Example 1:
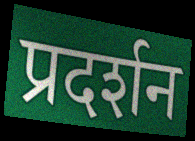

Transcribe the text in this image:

प्रदर्शन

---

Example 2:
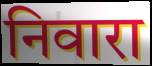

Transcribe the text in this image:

निवारा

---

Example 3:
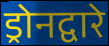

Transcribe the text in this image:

ड्रोनद्वारे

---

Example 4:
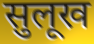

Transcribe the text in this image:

सुलूख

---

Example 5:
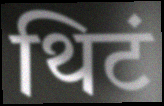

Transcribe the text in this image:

थिटं